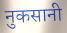
नुकसानी